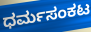
ಧರ್ಮಸಂಕಟ